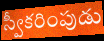
స్వీకరింపుడు